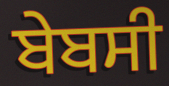
ਬੇਬਸੀ